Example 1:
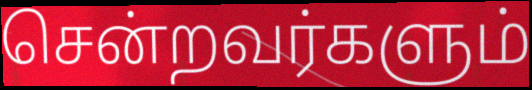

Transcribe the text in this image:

சென்றவர்களும்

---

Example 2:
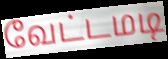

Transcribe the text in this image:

வேட்டமடி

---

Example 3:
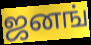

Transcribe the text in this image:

ஜனங்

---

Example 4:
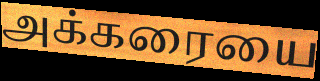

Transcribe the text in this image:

அக்கரையை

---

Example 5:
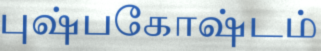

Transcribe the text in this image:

புஷ்பகோஷ்டம்